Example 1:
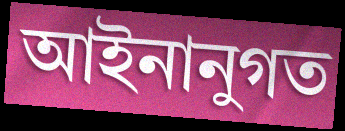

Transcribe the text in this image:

আইনানুগত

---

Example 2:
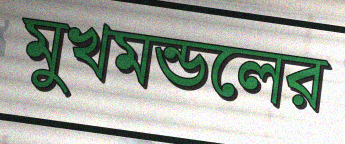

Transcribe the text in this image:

মুখমন্ডলের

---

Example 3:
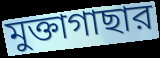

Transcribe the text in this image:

মুক্তাগাছার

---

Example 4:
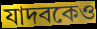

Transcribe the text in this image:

যাদবকেও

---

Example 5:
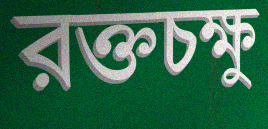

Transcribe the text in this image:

রক্তচক্ষু